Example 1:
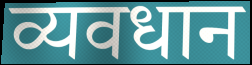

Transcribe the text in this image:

व्यवधान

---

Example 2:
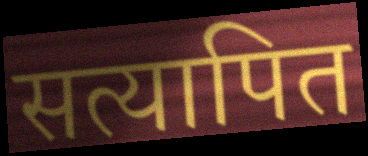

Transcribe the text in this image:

सत्यापित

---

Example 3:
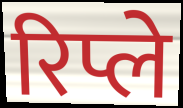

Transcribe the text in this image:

रिप्ले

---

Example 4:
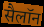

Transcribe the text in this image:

सैलॉन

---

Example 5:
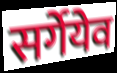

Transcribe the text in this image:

सर्गेयेव